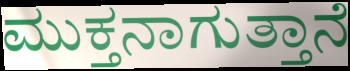
ಮುಕ್ತನಾಗುತ್ತಾನೆ